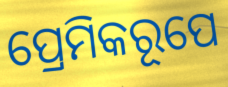
ପ୍ରେମିକରୂପେ